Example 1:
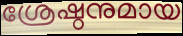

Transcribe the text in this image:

ശ്രേഷ്ഠനുമായ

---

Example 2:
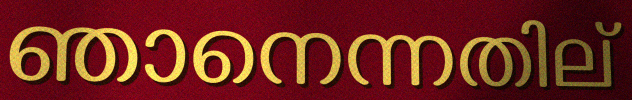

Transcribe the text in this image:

ഞാനെന്നതില്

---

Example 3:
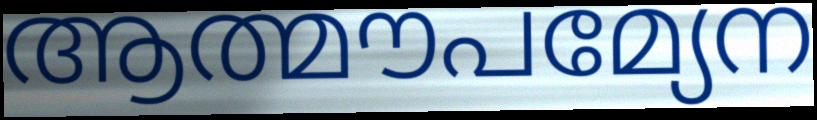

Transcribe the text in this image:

ആത്മൗപമ്യേന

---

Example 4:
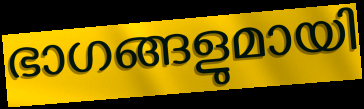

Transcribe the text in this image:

ഭാഗങ്ങളുമായി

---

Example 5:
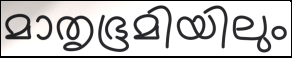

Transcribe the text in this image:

മാതൃഭൂമിയിലും